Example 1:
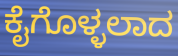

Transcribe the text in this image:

ಕೈಗೊಳ್ಳಲಾದ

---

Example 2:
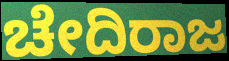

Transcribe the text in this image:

ಚೇದಿರಾಜ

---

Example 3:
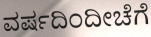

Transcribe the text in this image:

ವರ್ಷದಿಂದೀಚೆಗೆ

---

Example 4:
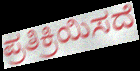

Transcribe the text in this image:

ಪ್ರತಿಕ್ರಿಯಿಸದೆ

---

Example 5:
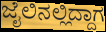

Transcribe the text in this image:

ಜೈಲಿನಲ್ಲಿದ್ದಾಗ